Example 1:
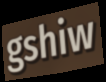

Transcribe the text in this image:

gshiw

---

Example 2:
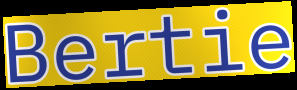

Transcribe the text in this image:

Bertie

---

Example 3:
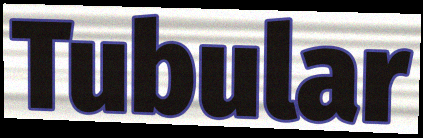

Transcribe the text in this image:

Tubular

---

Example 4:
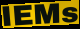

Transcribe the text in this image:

IEMs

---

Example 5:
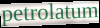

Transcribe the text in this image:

petrolatum